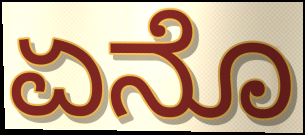
ಏನೊ